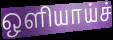
ஒளியாய்ச்